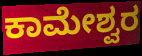
ಕಾಮೇಶ್ವರ